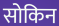
सोकिन